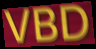
VBD